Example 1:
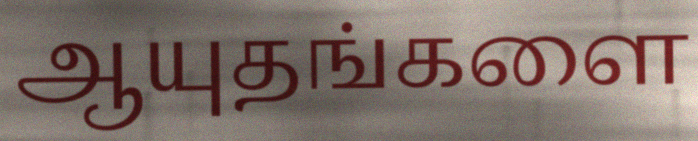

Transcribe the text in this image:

ஆயுதங்களை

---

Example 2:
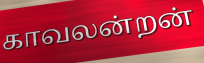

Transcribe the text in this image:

காவலன்றன்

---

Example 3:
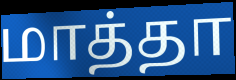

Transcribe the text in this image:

மாத்தா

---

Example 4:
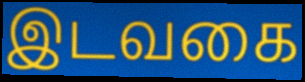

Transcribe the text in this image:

இடவகை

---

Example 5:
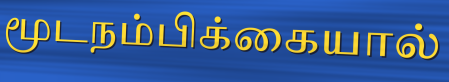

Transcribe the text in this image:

மூடநம்பிக்கையால்